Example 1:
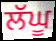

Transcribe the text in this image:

ਲੱਘੂ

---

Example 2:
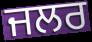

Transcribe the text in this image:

ਜਲਰ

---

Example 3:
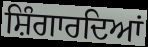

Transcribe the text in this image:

ਸ਼ਿੰਗਾਰਦਿਆਂ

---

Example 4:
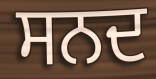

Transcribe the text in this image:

ਸਨਦ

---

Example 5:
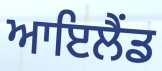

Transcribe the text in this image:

ਆਇਲੈੰਡ